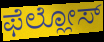
ಫೆಲ್ಲೋಸ್